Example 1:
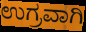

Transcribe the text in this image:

ಉಗ್ರವಾಗಿ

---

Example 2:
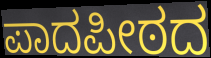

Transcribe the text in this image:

ಪಾದಪೀಠದ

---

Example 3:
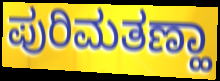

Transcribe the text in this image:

ಪುರಿಮತಣ್ಹಾ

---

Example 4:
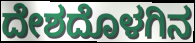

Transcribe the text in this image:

ದೇಶದೊಳಗಿನ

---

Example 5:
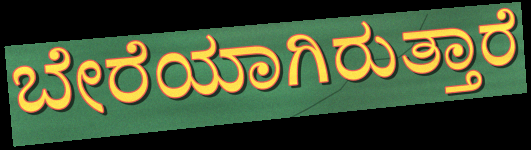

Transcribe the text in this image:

ಬೇರೆಯಾಗಿರುತ್ತಾರೆ